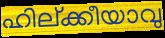
ഹില്ക്കീയാവു